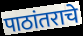
पाठांतराचे